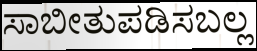
ಸಾಬೀತುಪಡಿಸಬಲ್ಲ